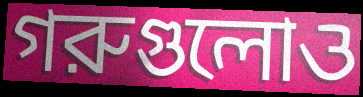
গরুগুলোও